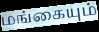
மங்கையும்